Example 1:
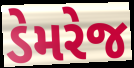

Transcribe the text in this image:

ડેમરેજ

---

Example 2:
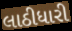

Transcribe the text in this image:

લાઠીધારી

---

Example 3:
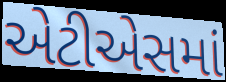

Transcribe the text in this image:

એટીએસમાં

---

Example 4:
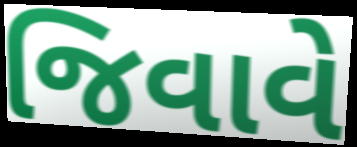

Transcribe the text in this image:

જિવાવે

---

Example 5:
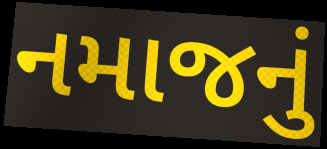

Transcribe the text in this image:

નમાજનું